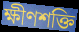
ক্ষীণশক্তি